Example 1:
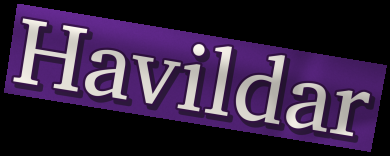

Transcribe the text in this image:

Havildar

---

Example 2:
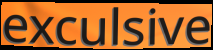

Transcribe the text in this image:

exculsive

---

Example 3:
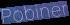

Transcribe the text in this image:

Pobiner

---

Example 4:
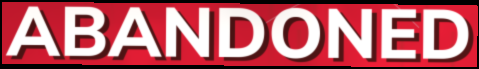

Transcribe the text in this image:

ABANDONED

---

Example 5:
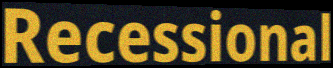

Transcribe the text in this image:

Recessional